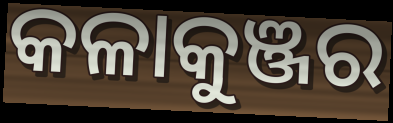
କଳାକୁଞ୍ଜର